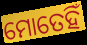
ମୋତେହିଁ